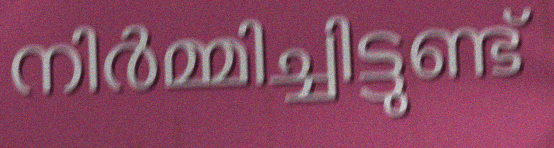
നിർമ്മിച്ചിട്ടുണ്ട്